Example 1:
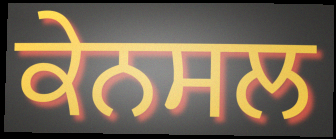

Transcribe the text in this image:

ਕੇਨਸਲ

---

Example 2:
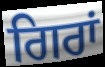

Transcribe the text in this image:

ਗਿਰਾਂ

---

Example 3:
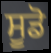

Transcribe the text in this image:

ਸੂਡੋ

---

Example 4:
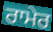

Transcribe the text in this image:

ਰਾਮੇਰ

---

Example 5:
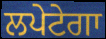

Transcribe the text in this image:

ਲਪੇਟੇਗਾ